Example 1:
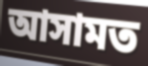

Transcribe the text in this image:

আসামত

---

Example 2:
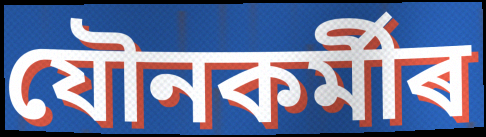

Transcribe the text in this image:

যৌনকৰ্মীৰ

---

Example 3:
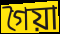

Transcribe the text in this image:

গৈয়া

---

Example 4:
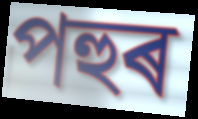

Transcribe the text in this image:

পহুৰ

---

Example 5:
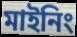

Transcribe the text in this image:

মাইনিং